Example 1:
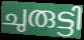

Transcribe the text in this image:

ചുരുട്ടി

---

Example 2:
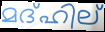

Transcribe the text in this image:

മദ്ഹില്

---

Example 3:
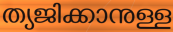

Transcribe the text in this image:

ത്യജിക്കാനുള്ള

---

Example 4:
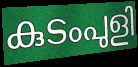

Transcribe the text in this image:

കുടംപുളി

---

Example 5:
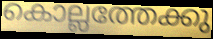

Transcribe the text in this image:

കൊല്ലത്തേക്കു